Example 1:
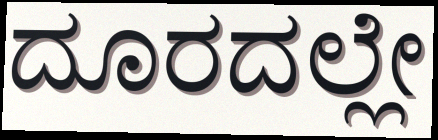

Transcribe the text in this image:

ದೂರದಲ್ಲೇ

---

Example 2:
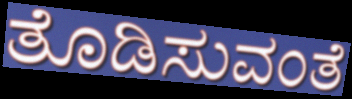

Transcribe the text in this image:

ತೊಡಿಸುವಂತೆ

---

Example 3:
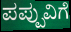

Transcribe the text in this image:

ಪಪ್ಪುವಿಗೆ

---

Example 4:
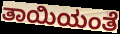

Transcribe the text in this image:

ತಾಯಿಯಂತೆ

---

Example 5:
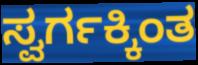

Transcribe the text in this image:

ಸ್ವರ್ಗಕ್ಕಿಂತ